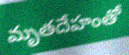
మృతదేహంతో